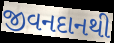
જીવનદાનથી